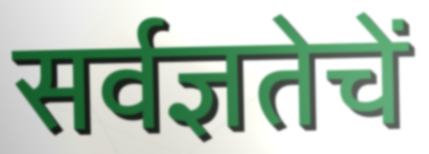
सर्वज्ञतेचें